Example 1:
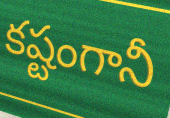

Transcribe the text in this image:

కష్టంగానీ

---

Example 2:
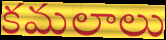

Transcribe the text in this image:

కమలాలు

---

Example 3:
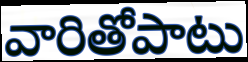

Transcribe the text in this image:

వారితోపాటు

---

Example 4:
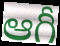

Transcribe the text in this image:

ఆగీ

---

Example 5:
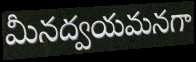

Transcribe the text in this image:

మీనద్వయమనగా